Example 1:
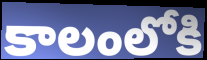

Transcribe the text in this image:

కాలంలోకి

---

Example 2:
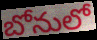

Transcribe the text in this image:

బోనులో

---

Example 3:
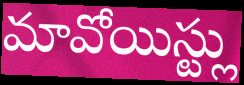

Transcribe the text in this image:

మావోయిస్ట్లు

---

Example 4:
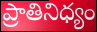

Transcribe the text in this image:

ప్రాతినిధ్యం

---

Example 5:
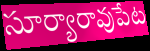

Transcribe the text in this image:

సూర్యారావుపేట